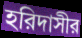
হরিদাসীর